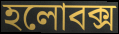
হলোবক্স